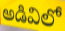
అడివిలో